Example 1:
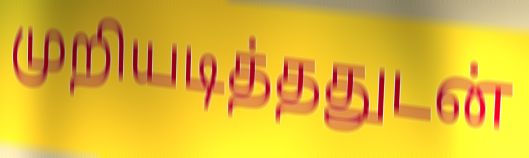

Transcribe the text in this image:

முறியடித்ததுடன்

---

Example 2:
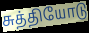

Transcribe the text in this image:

சுத்தியோடு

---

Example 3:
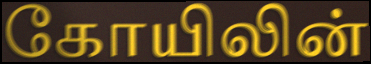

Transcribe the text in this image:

கோயிலின்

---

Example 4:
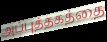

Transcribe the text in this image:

அப்புத்தகத்தை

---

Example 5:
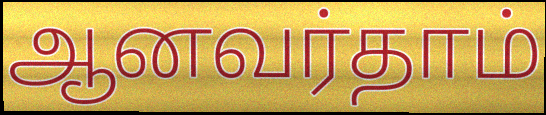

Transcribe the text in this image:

ஆனவர்தாம்